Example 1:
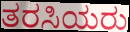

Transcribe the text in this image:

ತರಸಿಯರು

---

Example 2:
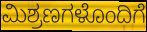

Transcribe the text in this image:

ಮಿಶ್ರಣಗಳೊಂದಿಗೆ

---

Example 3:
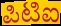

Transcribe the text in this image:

ಪಿಟಿಐ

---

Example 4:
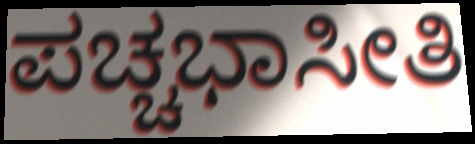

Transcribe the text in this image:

ಪಚ್ಚಭಾಸೀತಿ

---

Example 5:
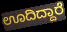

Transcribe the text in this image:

ಊದಿದ್ದಾರೆ